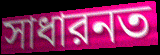
সাধারনত